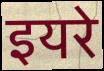
इयरे